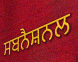
ਸਬਨੈਸ਼ਨਲ